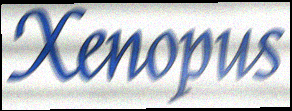
Xenopus